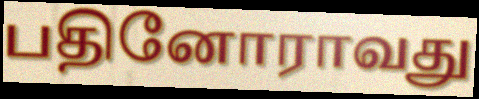
பதினோராவது